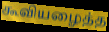
கூவியழைத்த